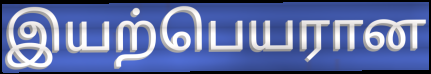
இயற்பெயரான